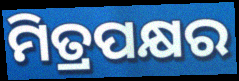
ମିତ୍ରପକ୍ଷର